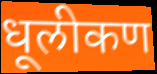
धूलीकण